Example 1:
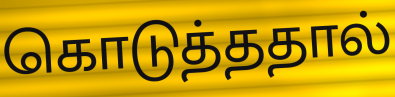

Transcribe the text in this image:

கொடுத்ததால்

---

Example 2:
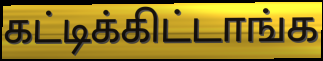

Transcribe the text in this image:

கட்டிக்கிட்டாங்க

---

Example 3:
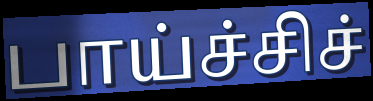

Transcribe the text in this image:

பாய்ச்சிச்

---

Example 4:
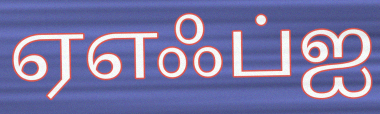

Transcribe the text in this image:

ஏஎஃப்ஐ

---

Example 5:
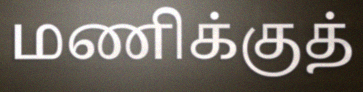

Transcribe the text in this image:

மணிக்குத்